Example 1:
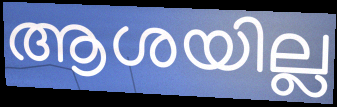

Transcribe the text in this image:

ആശയില്ല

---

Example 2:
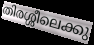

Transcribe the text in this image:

തിരശ്ശീലെക്കു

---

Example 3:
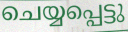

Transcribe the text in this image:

ചെയ്യപ്പെട്ടു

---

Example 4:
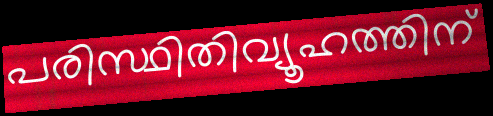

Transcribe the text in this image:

പരിസ്ഥിതിവ്യൂഹത്തിന്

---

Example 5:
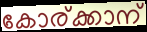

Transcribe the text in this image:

കോര്ക്കാന്